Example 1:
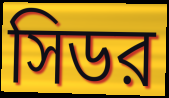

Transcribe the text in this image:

সিডর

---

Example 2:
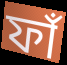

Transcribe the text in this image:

ফাঁ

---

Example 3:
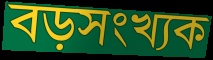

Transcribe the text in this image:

বড়সংখ্যক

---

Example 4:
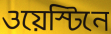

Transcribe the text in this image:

ওয়েস্টিনে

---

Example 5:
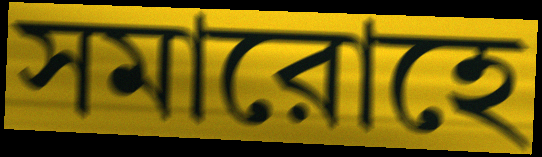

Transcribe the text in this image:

সমারোহে